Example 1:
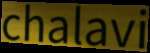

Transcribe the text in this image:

chalavi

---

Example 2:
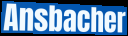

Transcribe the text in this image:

Ansbacher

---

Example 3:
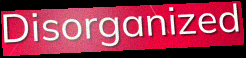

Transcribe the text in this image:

Disorganized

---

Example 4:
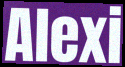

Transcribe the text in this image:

Alexi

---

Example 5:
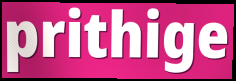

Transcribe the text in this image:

prithige